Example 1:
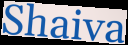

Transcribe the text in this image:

Shaiva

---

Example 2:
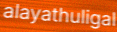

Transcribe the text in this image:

alayathuligal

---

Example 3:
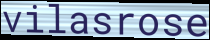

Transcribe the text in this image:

vilasrose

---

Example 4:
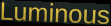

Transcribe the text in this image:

Luminous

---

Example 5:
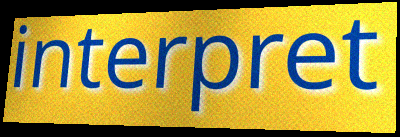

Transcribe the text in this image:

interpret